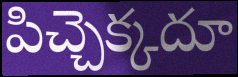
పిచ్చెక్కదూ